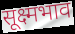
सूक्ष्मभाव